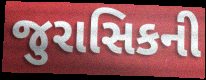
જુરાસિકની